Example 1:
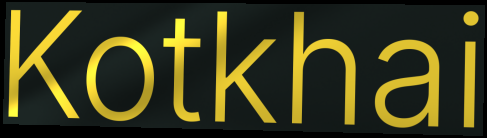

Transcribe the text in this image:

Kotkhai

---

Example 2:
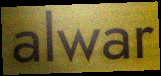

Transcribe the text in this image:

alwar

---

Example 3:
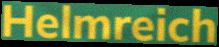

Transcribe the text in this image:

Helmreich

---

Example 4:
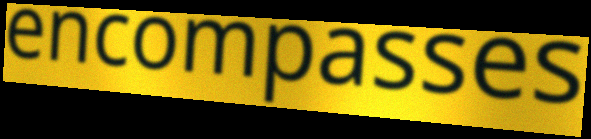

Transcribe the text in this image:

encompasses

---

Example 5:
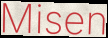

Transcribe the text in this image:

Misen